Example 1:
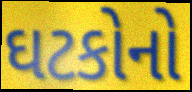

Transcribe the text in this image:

ઘટકોનો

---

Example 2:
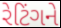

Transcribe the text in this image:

રેટિંગને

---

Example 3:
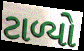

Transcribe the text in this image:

ટાળ્યો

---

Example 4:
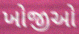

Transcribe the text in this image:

ખોજીઓ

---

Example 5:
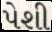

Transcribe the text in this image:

પેશી